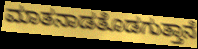
ಮಾತನಾಡತೊಡಗುತ್ತಾನೆ